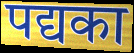
पद्यका